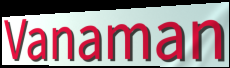
Vanaman